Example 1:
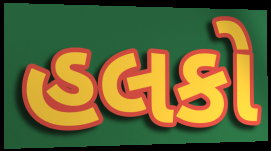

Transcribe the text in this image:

હલકો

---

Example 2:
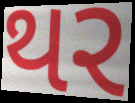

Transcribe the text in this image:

થર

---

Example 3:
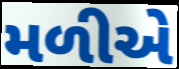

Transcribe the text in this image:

મળીએ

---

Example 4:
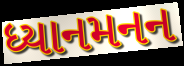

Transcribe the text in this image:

ધ્યાનમનન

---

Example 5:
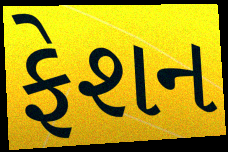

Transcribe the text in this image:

ફેશન